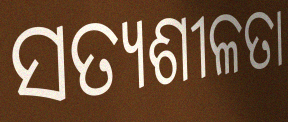
ସତ୍ୟଶୀଳତା